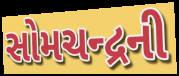
સોમચન્દ્રની